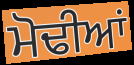
ਮੋਢੀਆਂ